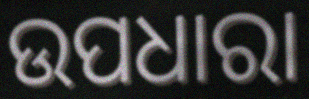
ଉପଧାରା